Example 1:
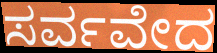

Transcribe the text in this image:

ಸರ್ವವೇದ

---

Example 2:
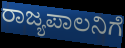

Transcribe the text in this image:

ರಾಜ್ಯಪಾಲನಿಗೆ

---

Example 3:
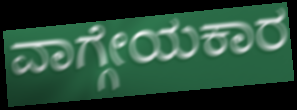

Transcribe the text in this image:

ವಾಗ್ಗೇಯಕಾರ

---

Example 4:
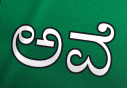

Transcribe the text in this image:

ಅವೆ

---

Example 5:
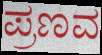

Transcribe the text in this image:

ಪ್ರಣವ